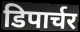
डिपार्चर